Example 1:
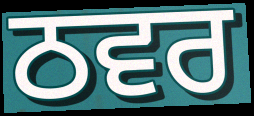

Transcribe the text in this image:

ਠਵਰ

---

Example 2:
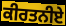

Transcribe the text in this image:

ਕੀਰਤਨੀਏ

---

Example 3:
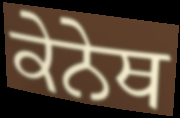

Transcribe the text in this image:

ਕੇਨੇਥ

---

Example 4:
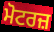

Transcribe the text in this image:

ਮੋਟਰਜ਼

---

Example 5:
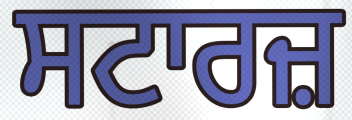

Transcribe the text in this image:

ਸਟਾਰਜ਼